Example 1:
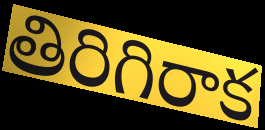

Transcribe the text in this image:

తిరిగిరాక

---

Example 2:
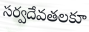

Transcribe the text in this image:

సర్వదేవతలకూ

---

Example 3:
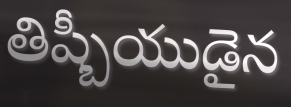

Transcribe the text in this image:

తిష్బీయుడైన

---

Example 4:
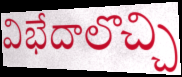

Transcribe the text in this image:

విభేదాలొచ్చి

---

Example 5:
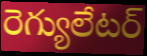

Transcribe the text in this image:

రెగ్యులేటర్